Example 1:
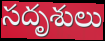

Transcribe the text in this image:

సదృశులు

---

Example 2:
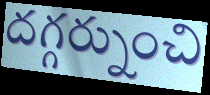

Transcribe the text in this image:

దగ్గర్నుంచి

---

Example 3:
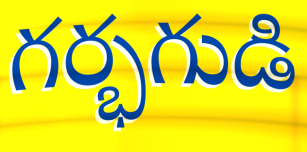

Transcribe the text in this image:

గర్భగుడి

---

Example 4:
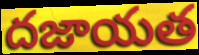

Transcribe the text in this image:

దజాయత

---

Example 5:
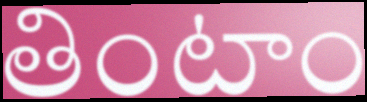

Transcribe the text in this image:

తింటాం